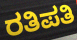
ರತಿಪತಿ